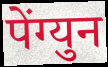
पेंग्युन